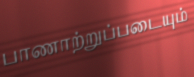
பாணாற்றுப்படையும்